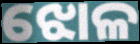
ଝୋଳ